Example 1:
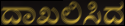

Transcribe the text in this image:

ದಾಖಲಿಸಿದ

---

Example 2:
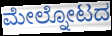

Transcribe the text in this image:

ಮೇಲ್ನೋಟದ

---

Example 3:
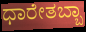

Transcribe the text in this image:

ಧಾರೇತಬ್ಬಾ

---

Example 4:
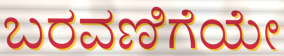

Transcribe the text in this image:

ಬರವಣಿಗೆಯೇ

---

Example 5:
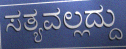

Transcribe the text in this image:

ಸತ್ಯವಲ್ಲದ್ದು